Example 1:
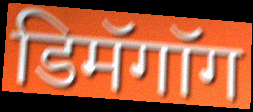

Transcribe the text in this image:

डिमॅगॉग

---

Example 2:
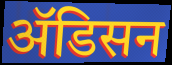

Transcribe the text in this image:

ॲडिसन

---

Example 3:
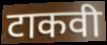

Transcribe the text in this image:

टाकवी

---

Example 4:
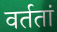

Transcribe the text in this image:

वर्ततां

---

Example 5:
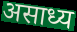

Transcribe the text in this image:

असाध्य